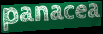
panacea